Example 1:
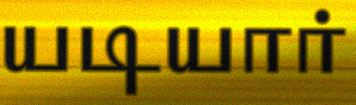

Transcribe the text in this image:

யடியார்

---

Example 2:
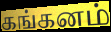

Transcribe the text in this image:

கங்கனம்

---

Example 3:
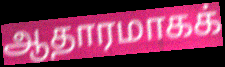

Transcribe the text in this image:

ஆதாரமாகக்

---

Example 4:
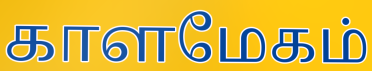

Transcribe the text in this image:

காளமேகம்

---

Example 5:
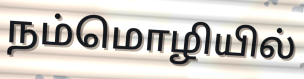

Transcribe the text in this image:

நம்மொழியில்